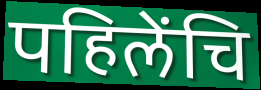
पहिलेंचि